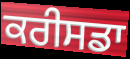
ਕਰੀਸਡਾ